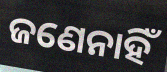
ଜଣେନାହିଁ